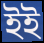
ইই